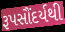
રૂપસૌંદર્યથી